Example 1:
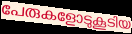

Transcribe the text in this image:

പേരുകളോടുകൂടിയ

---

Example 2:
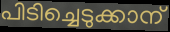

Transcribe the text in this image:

പിടിച്ചെടുക്കാന്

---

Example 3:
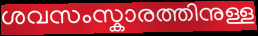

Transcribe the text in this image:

ശവസംസ്കാരത്തിനുള്ള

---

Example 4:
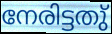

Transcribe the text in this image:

നേരിട്ടതു്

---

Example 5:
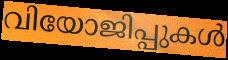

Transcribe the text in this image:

വിയോജിപ്പുകൾ